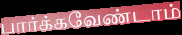
பார்க்கவேண்டாம்